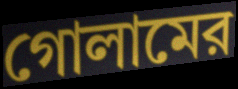
গোলামের